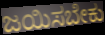
ಜಯಿಸಬೇಕು